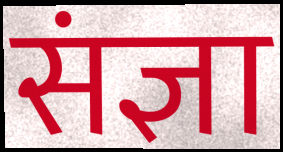
संज्ञा